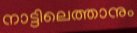
നാട്ടിലെത്താനും